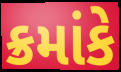
ક્રમાંકે